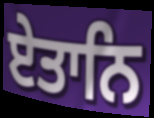
ਏਤਾਨਿ